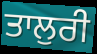
ਤਾਲੁਰੀ